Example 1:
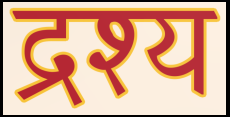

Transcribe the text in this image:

द्रश्य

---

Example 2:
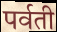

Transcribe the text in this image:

पर्वती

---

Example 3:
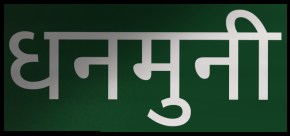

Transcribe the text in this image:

धनमुनी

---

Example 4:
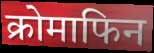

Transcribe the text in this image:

क्रोमाफिन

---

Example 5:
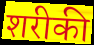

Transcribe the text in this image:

शरीकी